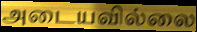
அடையவில்லை